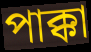
পাক্কা